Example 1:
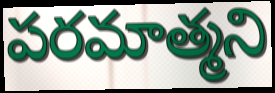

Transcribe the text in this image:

పరమాత్మని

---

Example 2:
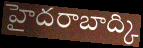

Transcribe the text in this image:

హైదరాబాద్కి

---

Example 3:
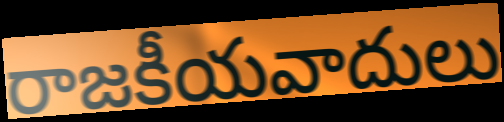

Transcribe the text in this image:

రాజకీయవాదులు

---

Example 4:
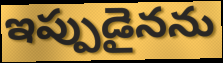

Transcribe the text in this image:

ఇప్పుడైనను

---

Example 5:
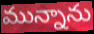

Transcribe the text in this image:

మున్నాను